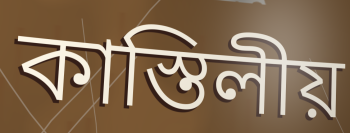
কাস্তিলীয়